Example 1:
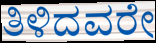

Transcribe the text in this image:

ತಿಳಿದವರೇ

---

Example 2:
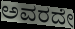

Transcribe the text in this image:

ಅವರದೇ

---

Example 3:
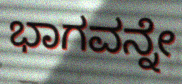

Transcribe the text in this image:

ಭಾಗವನ್ನೇ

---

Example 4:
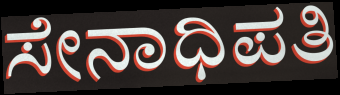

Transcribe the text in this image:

ಸೇನಾಧಿಪತಿ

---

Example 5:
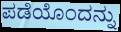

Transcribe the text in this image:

ಪಡೆಯೊಂದನ್ನು